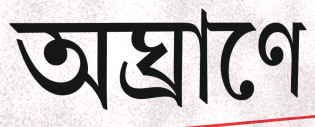
অঘ্রাণে